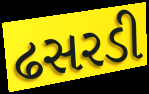
ઢસરડી